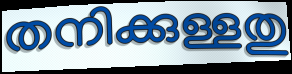
തനിക്കുള്ളതു